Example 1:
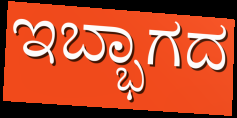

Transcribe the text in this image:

ಇಬ್ಭಾಗದ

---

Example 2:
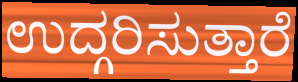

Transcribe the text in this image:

ಉದ್ಗರಿಸುತ್ತಾರೆ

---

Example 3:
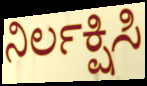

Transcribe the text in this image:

ನಿರ್ಲಕ್ಷಿಸಿ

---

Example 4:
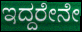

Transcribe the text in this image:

ಇದ್ದರೇನೇ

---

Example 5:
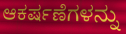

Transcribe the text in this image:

ಆಕರ್ಷಣೆಗಳನ್ನು